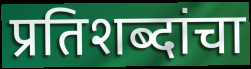
प्रतिशब्दांचा